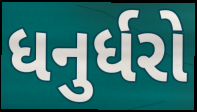
ધનુર્ધરો